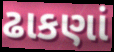
ઢાકણાં